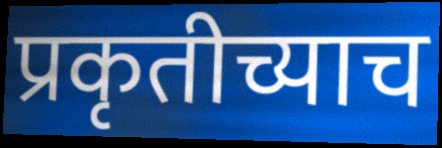
प्रकृतीच्याच